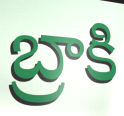
బ్రాకి